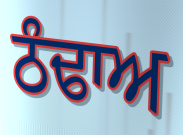
ਠੰਢਾਅ